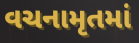
વચનામૃતમાં